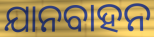
ଯାନବାହନ